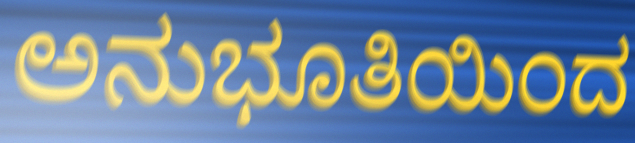
ಅನುಭೂತಿಯಿಂದ